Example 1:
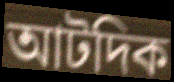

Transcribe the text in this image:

আটদিক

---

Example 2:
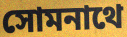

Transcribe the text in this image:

সোমনাথে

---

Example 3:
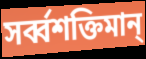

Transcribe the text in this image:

সর্ব্বশক্তিমান্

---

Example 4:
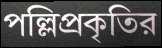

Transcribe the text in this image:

পল্লিপ্রকৃতির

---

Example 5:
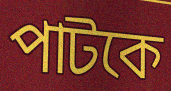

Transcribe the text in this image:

পাটকে